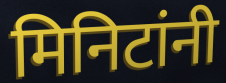
मिनिटांनी